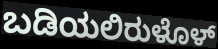
ಬಡಿಯಲಿರುಳೊಳ್